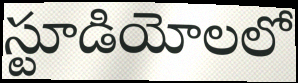
స్టూడియోలలో